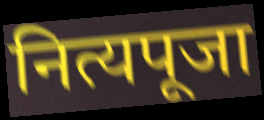
नित्यपूजा